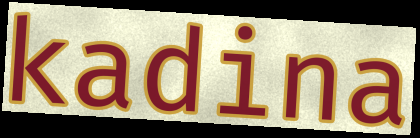
kadina